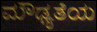
ಮೌಢ್ಯತೆಯ